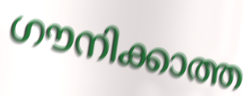
ഗൗനിക്കാത്ത